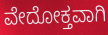
ವೇದೋಕ್ತವಾಗಿ